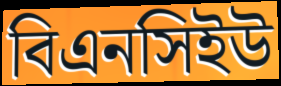
বিএনসিইউ